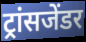
ट्रांसजेंडर